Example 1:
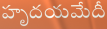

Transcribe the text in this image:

హృదయమేదీ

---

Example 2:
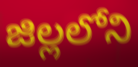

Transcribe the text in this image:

జిల్లలోని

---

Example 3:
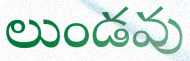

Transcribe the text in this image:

లుండవు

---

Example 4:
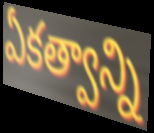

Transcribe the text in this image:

ఏకత్వాన్ని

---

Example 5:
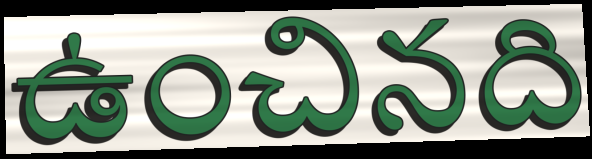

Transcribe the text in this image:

ఉంచినది